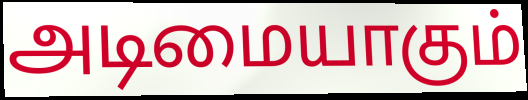
அடிமையாகும்